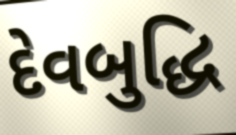
દેવબુદ્ધિ